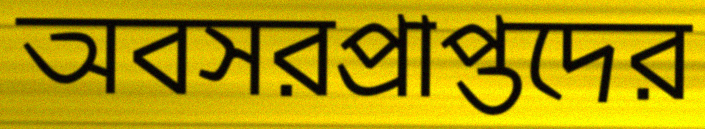
অবসরপ্রাপ্তদের